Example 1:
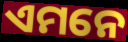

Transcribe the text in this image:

ଏମନେ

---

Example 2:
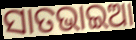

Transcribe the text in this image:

ସାତଭାଇଆ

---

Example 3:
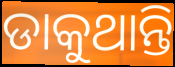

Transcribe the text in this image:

ଡାକୁଥାନ୍ତି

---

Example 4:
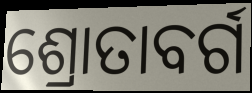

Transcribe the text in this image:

ଶ୍ରୋତାବର୍ଗ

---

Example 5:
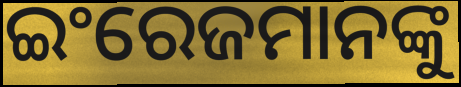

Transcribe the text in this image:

ଇଂରେଜମାନଙ୍କୁ